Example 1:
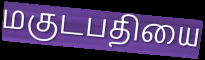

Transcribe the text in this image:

மகுடபதியை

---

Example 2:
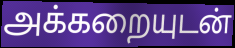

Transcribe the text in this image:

அக்கறையுடன்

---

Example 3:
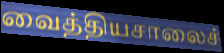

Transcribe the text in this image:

வைத்தியசாலைச்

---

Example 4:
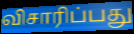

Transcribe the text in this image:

விசாரிப்பது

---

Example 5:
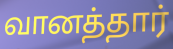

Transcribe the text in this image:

வானத்தார்